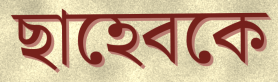
ছাহেবকে